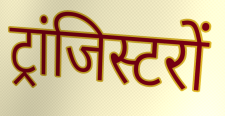
ट्रांजिस्टरों